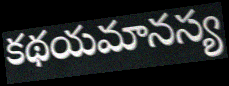
కథయమానస్య